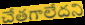
చేతగాలేదని